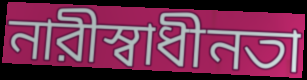
নারীস্বাধীনতা